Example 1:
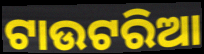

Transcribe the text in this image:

ଟାଉଟରିଆ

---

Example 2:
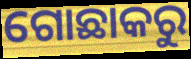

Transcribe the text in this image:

ଗୋଛାକରୁ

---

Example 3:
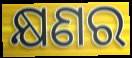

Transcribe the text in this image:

କ୍ଷଣର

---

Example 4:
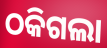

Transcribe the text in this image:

ଠକିଗଲା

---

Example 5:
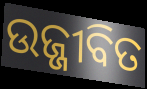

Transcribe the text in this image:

ଉଜ୍ଜୀବିତ